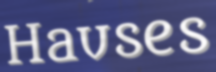
Hauses